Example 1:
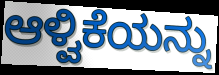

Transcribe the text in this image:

ಆಳ್ವಿಕೆಯನ್ನು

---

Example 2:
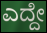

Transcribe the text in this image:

ಎದ್ದೇ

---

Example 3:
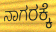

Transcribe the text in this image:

ನಾಗರಕ್ಕೆ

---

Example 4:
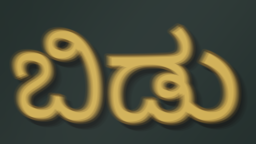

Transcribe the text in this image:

ಬಿಡು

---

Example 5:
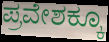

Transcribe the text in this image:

ಪ್ರವೇಶಕ್ಕೂ